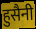
हुसैनी